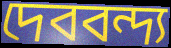
দেববন্দ্য